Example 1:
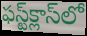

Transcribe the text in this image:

ఫస్ట్‌క్లాస్‌లో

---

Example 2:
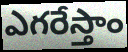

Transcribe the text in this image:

ఎగరేస్తాం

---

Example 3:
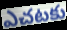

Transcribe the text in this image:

ఎచటకు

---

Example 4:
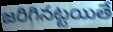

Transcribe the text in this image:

జరిగినట్టయితే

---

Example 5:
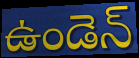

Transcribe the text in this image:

ఉండెన్